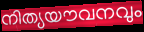
നിത്യയൗവനവും